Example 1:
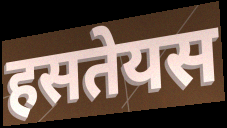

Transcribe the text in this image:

हसतेयस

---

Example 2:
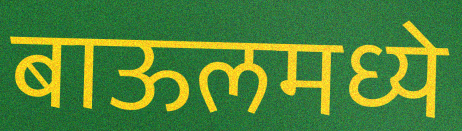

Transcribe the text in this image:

बाऊलमध्ये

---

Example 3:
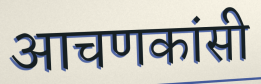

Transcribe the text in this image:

आचणकांसी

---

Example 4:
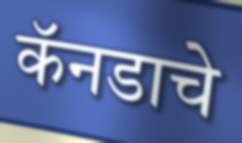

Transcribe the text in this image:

कॅनडाचे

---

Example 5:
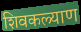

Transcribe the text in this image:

शिवकल्याण